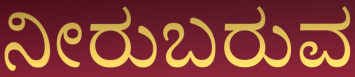
ನೀರುಬರುವ